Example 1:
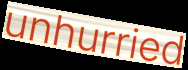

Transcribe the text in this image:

unhurried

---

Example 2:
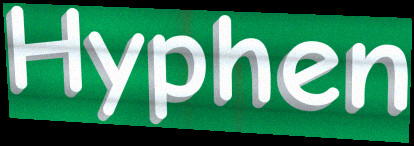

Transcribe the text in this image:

Hyphen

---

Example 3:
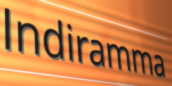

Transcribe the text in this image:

Indiramma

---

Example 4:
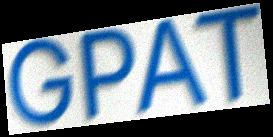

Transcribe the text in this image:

GPAT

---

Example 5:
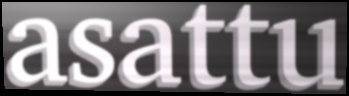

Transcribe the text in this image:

asattu